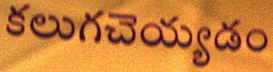
కలుగచెయ్యడం